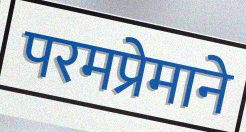
परमप्रेमाने